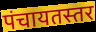
पंचायतस्तर